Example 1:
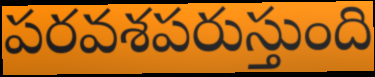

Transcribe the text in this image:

పరవశపరుస్తుంది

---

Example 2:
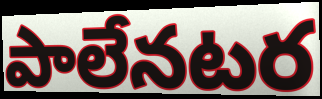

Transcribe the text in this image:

పాలేనటర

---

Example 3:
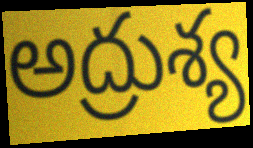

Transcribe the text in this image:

అద్రుశ్య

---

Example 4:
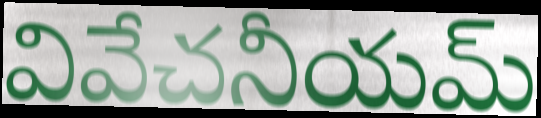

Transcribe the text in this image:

వివేచనీయమ్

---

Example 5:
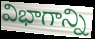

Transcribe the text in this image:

విభాగాన్ని